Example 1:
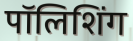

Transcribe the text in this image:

पॉलिशिंग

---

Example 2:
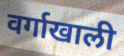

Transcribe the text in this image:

वर्गाखाली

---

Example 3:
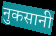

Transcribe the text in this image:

नुकसानी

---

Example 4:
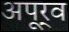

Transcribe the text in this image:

अपूर्व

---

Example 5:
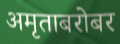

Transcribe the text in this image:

अमृताबरोबर